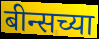
बीन्सच्या